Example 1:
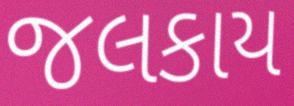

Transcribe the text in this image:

જલકાય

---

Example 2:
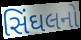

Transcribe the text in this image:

સિંઘલનો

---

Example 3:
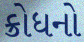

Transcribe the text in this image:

ક્રોધનો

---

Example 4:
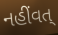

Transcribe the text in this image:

નહીંવત્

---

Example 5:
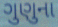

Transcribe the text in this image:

ગુણુના